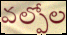
వల్పోల